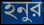
হনুর